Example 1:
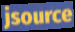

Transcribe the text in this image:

jsource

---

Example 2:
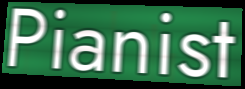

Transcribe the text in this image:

Pianist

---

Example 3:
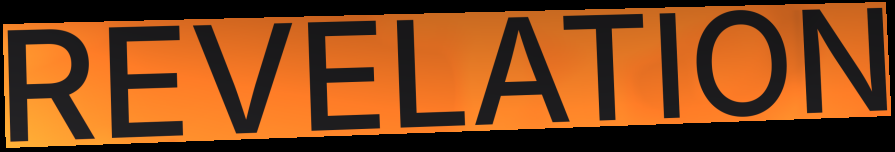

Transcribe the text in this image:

REVELATION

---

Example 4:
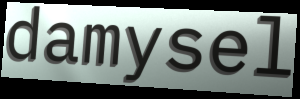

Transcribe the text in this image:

damysel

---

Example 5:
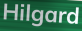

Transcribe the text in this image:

Hilgard